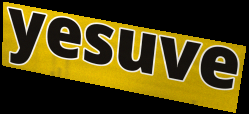
yesuve